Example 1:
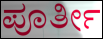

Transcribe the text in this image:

ಪೂರ್ತೀ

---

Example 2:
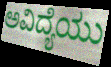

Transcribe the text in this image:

ಅವಿದ್ಯೆಯು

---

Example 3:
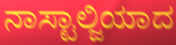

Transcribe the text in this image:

ನಾಸ್ಟಾಲ್ಜಿಯಾದ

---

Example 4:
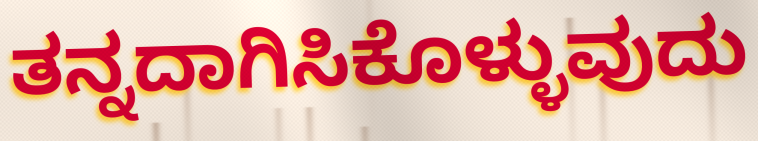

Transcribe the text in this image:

ತನ್ನದಾಗಿಸಿಕೊಳ್ಳುವುದು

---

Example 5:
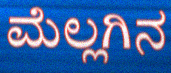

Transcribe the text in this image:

ಮೆಲ್ಲಗಿನ